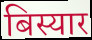
बिस्यार